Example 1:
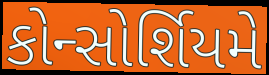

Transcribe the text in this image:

કોન્સોર્શિયમે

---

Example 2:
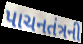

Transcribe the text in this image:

પાચનતંત્રની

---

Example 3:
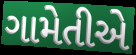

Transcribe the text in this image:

ગામેતીએ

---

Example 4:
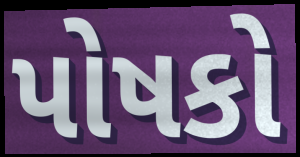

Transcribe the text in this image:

પોષકો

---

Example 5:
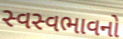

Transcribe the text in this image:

સ્વસ્વભાવનો